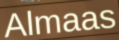
Almaas